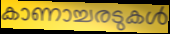
കാണാച്ചരടുകൾ